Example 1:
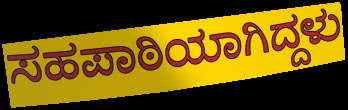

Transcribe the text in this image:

ಸಹಪಾಠಿಯಾಗಿದ್ದಳು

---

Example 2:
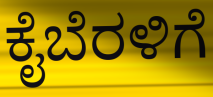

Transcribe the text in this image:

ಕೈಬೆರಳಿಗೆ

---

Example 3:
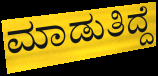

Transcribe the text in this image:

ಮಾಡುತಿದ್ದೆ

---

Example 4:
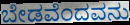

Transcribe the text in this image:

ಬೇಡವೆಂದವನು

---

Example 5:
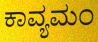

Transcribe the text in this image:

ಕಾವ್ಯಮಂ